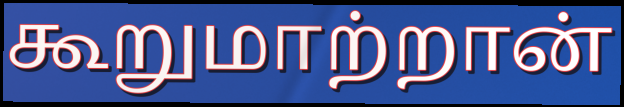
கூறுமாற்றான்